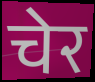
चेर